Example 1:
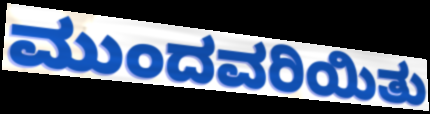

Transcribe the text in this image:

ಮುಂದವರಿಯಿತು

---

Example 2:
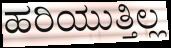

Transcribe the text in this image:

ಹರಿಯುತ್ತಿಲ್ಲ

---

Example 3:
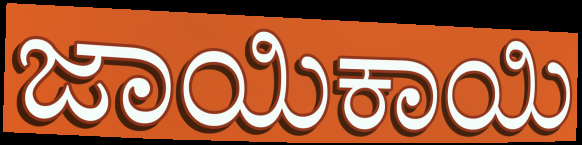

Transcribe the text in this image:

ಜಾಯಿಕಾಯಿ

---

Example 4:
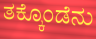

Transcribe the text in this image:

ತಕ್ಕೊಂಡೆನು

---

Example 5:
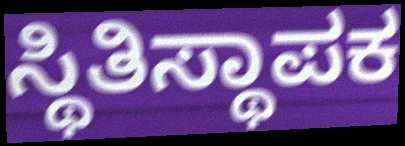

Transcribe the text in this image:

ಸ್ಥಿತಿಸ್ಥಾಪಕ